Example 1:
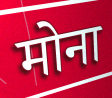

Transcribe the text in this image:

मोना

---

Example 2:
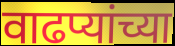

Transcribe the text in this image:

वाढप्यांच्या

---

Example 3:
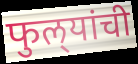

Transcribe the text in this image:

फुल्यांची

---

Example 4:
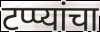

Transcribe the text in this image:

टप्प्यांचा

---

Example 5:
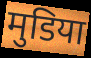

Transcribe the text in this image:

मुडिया